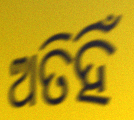
ଅତିହିଁ